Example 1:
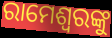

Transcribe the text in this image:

ରାମେଶ୍ୱରଙ୍କୁ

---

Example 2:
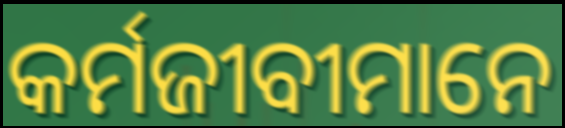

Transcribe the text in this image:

କର୍ମଜୀବୀମାନେ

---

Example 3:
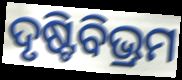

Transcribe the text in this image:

ଦୃଷ୍ଟିବିଭ୍ରମ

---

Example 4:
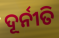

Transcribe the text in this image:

ଦୂର୍ନୀତି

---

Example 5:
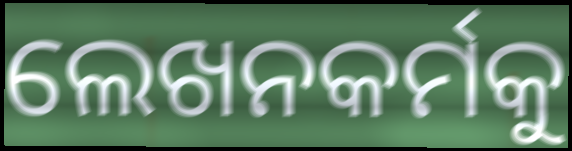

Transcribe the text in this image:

ଲେଖନକର୍ମକୁ